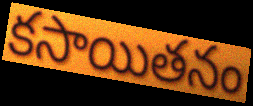
కసాయితనం